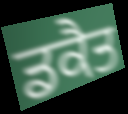
ਡਕੈਤ